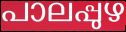
പാലപ്പുഴ